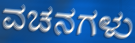
ವಚನಗಳು